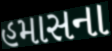
હમાસના